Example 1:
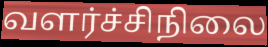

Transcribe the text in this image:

வளர்ச்சிநிலை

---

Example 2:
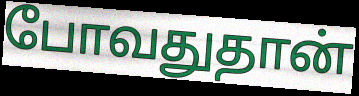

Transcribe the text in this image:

போவதுதான்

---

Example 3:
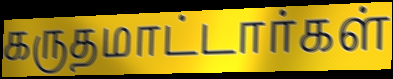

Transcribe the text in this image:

கருதமாட்டார்கள்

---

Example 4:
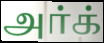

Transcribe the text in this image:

அர்க்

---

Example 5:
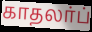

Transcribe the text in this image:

காதலர்ப்